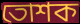
তোশক